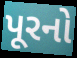
પૂરનો